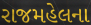
રાજમહેલના